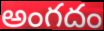
అంగదం